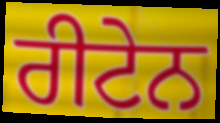
ਰੀਟੇਨ